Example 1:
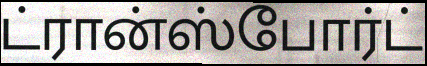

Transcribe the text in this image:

ட்ரான்ஸ்போர்ட்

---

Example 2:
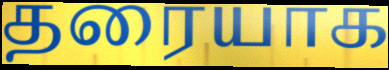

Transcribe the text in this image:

தரையாக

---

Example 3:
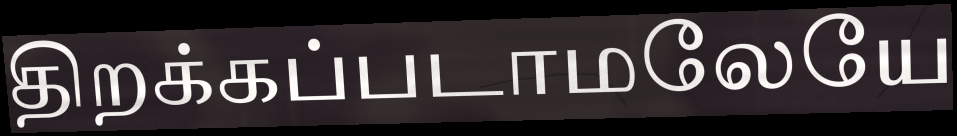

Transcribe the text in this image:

திறக்கப்படாமலேயே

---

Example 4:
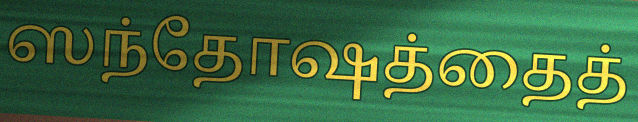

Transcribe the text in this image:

ஸந்தோஷத்தைத்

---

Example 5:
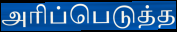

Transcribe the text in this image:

அரிப்பெடுத்த